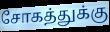
சோகத்துக்கு